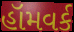
હૉમવર્ક